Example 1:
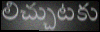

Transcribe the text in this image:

లిచ్చుటకు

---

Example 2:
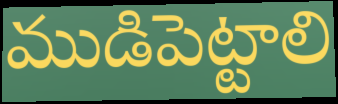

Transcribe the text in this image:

ముడిపెట్టాలి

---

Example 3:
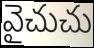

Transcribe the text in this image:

వైచుచు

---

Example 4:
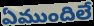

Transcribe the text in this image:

ఏముందిలే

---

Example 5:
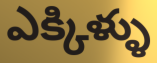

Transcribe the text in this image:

ఎక్కిళ్ళు